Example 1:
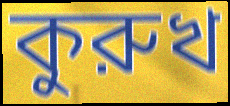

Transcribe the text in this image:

কুৰুখ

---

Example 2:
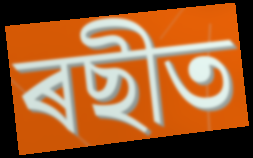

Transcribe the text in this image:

ৰছীত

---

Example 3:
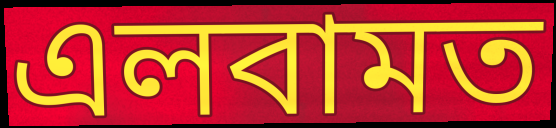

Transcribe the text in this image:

এলবামত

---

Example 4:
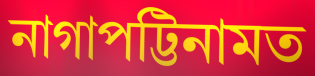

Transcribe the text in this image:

নাগাপট্টিনামত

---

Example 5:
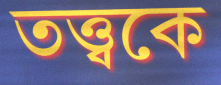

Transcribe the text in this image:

তত্ত্বকে